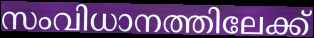
സംവിധാനത്തിലേക്ക്